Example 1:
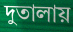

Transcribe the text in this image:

দুতালায়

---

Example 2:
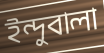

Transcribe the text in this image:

ইন্দুবালা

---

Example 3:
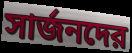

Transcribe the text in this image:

সার্জনদের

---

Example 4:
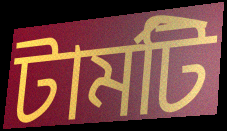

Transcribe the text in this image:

টার্মটি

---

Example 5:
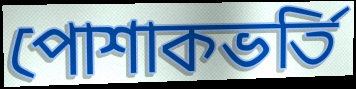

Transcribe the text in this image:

পোশাকভর্তি